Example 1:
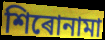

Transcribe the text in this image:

শিৰোনামা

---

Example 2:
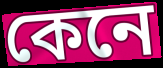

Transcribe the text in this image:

কেনে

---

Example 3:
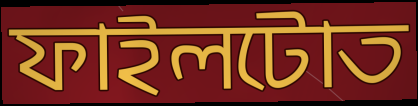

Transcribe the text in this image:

ফাইলটোত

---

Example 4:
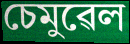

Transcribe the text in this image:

চেমুৱেল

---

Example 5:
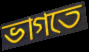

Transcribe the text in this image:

ভাগতে